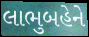
લાભુબહેને